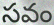
సవం